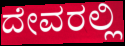
ದೇವರಲ್ಲಿ